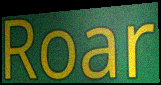
Roar